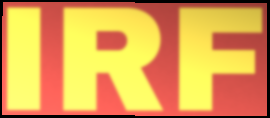
IRF